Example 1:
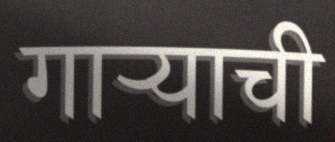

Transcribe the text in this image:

गाऱ्याची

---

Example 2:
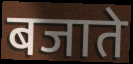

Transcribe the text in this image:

बजाते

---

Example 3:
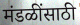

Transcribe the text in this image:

मंडळींसाठी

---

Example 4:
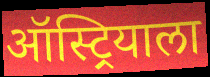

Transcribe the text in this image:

ऑस्ट्रियाला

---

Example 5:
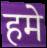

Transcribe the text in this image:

हमे